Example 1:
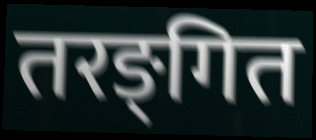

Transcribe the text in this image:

तरङ्गित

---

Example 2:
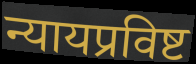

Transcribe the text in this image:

न्यायप्रविष्ट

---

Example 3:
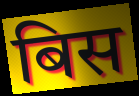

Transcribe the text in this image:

बिस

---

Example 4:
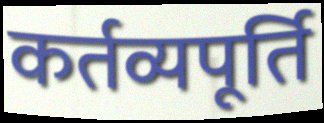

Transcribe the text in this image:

कर्तव्यपूर्ति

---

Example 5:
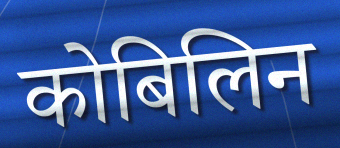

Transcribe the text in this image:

कोबिलिन